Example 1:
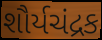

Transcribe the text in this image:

શૌર્યચંદ્રક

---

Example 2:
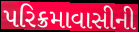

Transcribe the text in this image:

પરિક્રમાવાસીની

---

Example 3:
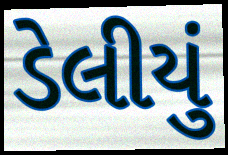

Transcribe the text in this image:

ડેલીયું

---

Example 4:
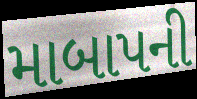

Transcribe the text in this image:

માબાપની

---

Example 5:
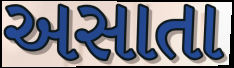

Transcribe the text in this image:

અસાતા